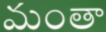
మంతా